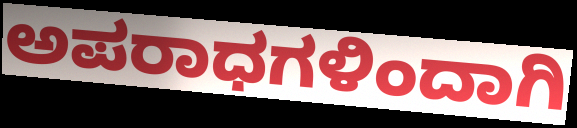
ಅಪರಾಧಗಳಿಂದಾಗಿ